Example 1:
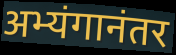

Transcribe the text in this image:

अभ्यंगानंतर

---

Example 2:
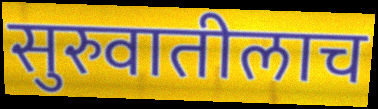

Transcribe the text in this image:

सुरुवातीलाच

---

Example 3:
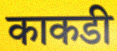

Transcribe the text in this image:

काकडी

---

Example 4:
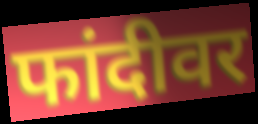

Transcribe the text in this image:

फांदीवर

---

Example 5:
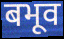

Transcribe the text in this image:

बभूव